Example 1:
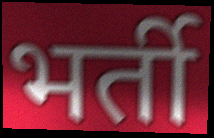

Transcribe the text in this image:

भर्ती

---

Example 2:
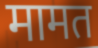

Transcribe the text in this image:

मामत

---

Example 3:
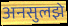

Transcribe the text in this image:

अनसुलझे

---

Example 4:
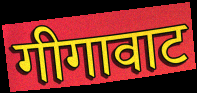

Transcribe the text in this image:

गीगावाट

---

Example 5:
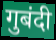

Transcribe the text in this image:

गुबंदी